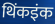
थिंकइंक